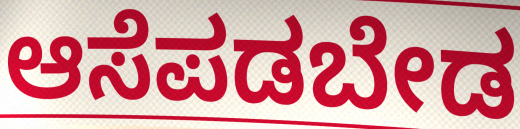
ಆಸೆಪಡಬೇಡ